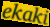
ekaki